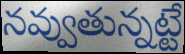
నవ్వుతున్నట్టే